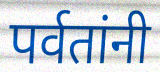
पर्वतांनी